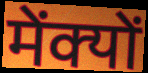
मेंक्यों